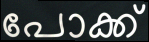
പോക്ക്